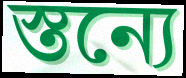
স্তন্যে